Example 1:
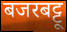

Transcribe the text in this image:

बजरबट्टू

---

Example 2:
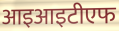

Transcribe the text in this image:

आइआइटीएफ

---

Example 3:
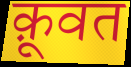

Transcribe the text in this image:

क़ूवत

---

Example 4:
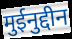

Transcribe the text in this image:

मुईनुद्दीन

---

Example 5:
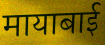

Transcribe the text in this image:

मायाबाई